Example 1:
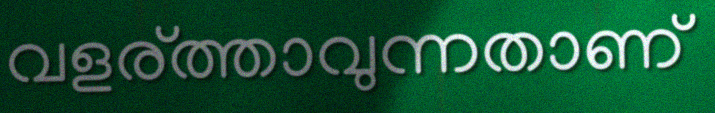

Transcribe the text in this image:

വളര്ത്താവുന്നതാണ്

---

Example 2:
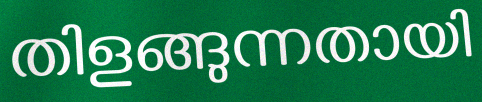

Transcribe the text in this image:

തിളങ്ങുന്നതായി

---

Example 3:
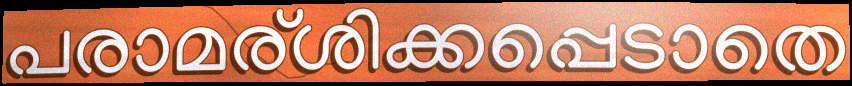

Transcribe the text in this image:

പരാമര്ശിക്കപ്പെടാതെ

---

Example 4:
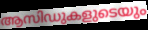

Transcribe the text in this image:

ആസിഡുകളുടെയും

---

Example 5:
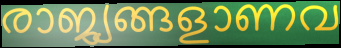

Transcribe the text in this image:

രാജ്യങ്ങളാണവ